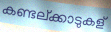
കണ്ടല്ക്കാടുകള്